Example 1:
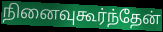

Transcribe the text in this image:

நினைவுகூர்ந்தேன்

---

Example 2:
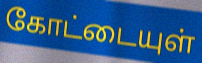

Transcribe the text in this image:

கோட்டையுள்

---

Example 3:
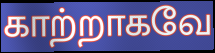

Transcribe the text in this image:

காற்றாகவே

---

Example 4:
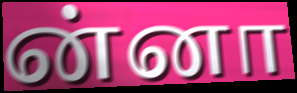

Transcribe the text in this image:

ன்னா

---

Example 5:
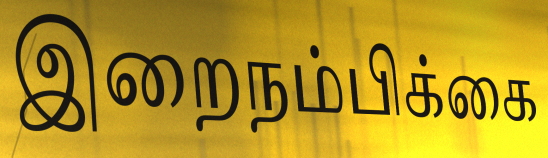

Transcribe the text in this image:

இறைநம்பிக்கை